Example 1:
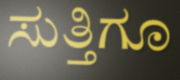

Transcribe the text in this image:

ಸುತ್ತಿಗೂ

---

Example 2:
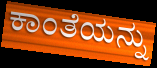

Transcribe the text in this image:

ಕಾಂತೆಯನ್ನು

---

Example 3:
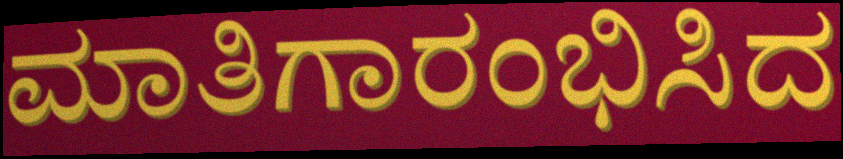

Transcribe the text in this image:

ಮಾತಿಗಾರಂಭಿಸಿದ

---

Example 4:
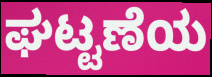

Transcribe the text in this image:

ಘಟ್ಟಣೆಯ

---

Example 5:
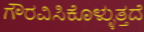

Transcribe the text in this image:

ಗೌರವಿಸಿಕೊಳ್ಳುತ್ತದೆ